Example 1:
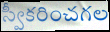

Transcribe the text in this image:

స్వీకరించగల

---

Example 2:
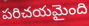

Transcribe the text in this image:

పరిచయమైంది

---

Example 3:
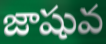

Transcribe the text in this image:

జాషువ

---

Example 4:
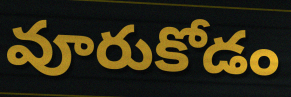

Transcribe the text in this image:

వూరుకోడం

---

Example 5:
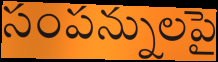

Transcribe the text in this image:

సంపన్నులపై